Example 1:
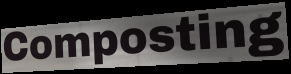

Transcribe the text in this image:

Composting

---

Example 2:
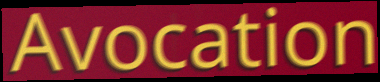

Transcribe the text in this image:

Avocation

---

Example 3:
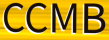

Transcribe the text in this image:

CCMB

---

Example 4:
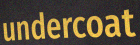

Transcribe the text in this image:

undercoat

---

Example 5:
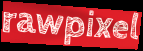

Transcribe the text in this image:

rawpixel